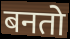
बनतो